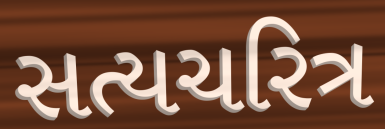
સત્યચરિત્ર